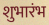
शुभारंभ